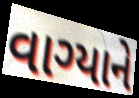
વાગ્યાને